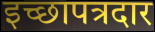
इच्छापत्रदार